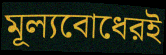
মূল্যবোধেরই